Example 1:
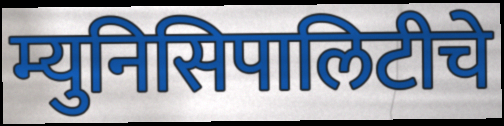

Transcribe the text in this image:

म्युनिसिपालिटीचे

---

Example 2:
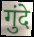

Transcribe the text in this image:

गुंदे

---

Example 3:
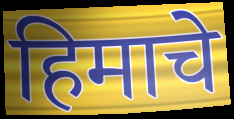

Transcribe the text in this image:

हिमाचे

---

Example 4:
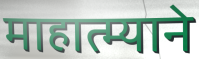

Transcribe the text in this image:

माहात्म्याने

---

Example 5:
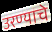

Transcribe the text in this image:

उरण्याचे